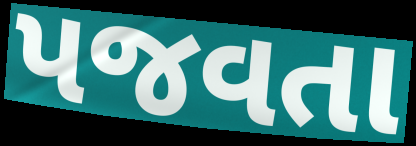
પજવતા